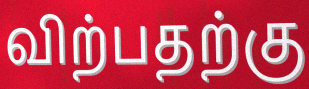
விற்பதற்கு